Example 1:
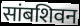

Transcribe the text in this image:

सांबशिवन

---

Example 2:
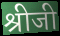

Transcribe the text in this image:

श्रीजी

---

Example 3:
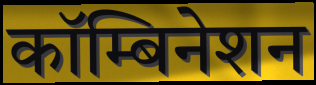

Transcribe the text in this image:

कॉम्बिनेशन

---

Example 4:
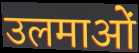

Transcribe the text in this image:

उलमाओं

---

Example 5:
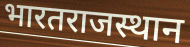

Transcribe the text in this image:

भारतराजस्थान